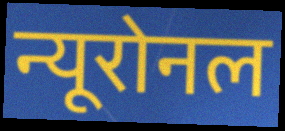
न्यूरोनल